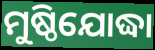
ମୁଷ୍ଠିଯୋଦ୍ଧା